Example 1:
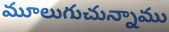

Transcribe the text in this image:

మూలుగుచున్నాము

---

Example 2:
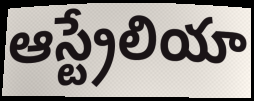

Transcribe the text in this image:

ఆస్ట్రేలియా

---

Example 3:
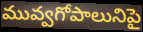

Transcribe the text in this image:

మువ్వగోపాలునిపై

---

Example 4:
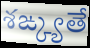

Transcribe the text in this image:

శఙ్క్యతే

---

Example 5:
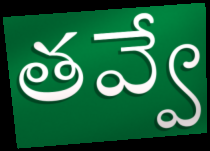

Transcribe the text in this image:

తవ్వే